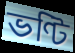
ভণ্টি